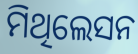
ମିଥିଲେସନ